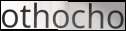
othocho